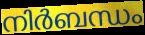
നിർബന്ധം